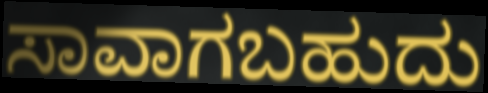
ಸಾವಾಗಬಹುದು